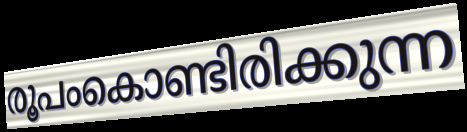
രൂപംകൊണ്ടിരിക്കുന്ന